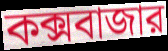
কক্সবাজার